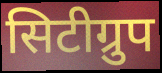
सिटीग्रुप